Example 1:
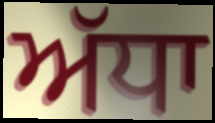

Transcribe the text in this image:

ਅੱਧਾ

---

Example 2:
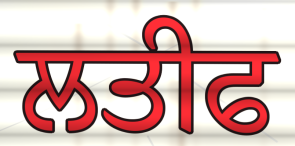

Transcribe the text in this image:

ਲਤੀਫ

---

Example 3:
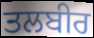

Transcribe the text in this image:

ਤਲਬੀਰ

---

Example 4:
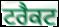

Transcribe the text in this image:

ਟਰੈਕਟ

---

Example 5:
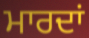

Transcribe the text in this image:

ਮਾਰਦਾਂ